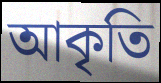
আকৃতি